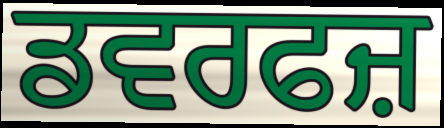
ਡਵਰਫਜ਼